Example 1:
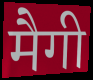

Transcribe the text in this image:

मैगी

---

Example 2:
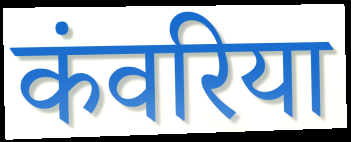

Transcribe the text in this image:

कंवरिया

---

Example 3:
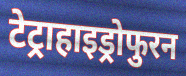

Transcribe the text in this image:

टेट्राहाइड्रोफुरन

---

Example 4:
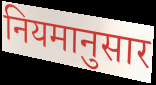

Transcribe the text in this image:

नियमानुसार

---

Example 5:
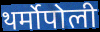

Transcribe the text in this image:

थर्मोपोली